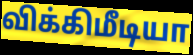
விக்கிமீடியா